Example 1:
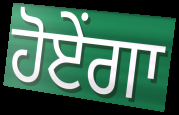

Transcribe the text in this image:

ਹੋਏਂਗਾ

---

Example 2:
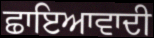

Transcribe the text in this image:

ਛਾਇਆਵਾਦੀ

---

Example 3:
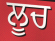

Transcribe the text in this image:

ਲੂਚ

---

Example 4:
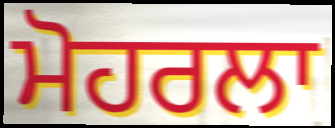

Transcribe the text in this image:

ਮੋਹਰਲਾ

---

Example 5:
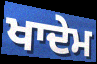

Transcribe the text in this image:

ਖਾਦੇਮ